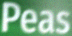
Peas